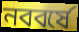
নববর্ষে